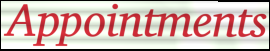
Appointments